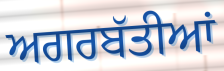
ਅਗਰਬੱਤੀਆਂ